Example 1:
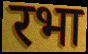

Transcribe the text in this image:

रभा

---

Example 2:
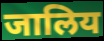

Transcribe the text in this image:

जालिय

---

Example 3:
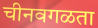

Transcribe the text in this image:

चीनवगळता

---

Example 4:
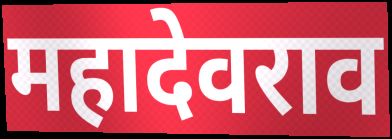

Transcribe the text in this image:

महादेवराव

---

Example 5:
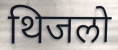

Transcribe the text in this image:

थिजलो